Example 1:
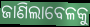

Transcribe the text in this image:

ଜାଣିଲାବେଳକୁ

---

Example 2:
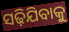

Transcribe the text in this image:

ସଢ଼ିଯିବାକୁ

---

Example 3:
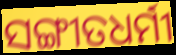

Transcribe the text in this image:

ସଙ୍ଗୀତଧର୍ମୀ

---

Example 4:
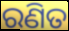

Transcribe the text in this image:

ରଣିତ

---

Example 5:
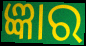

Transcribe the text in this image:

ଜ୍ଞାର